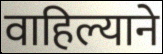
वाहिल्याने